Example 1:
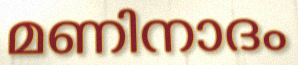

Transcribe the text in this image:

മണിനാദം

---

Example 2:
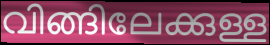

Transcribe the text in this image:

വിങ്ങിലേക്കുള്ള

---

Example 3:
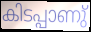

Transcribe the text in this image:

കിടപ്പാണു്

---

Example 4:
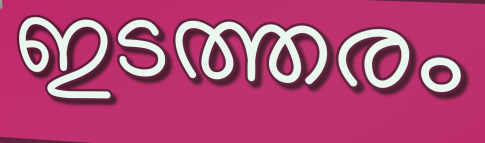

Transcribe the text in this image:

ഇടത്തരം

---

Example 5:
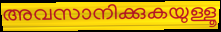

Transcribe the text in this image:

അവസാനിക്കുകയുള്ളൂ